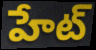
హేట్